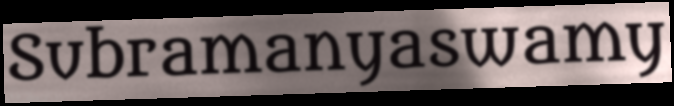
Subramanyaswamy